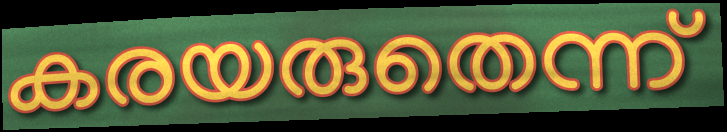
കരയരുതെന്ന്